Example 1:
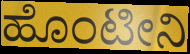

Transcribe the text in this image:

ಹೊಂಟೀನಿ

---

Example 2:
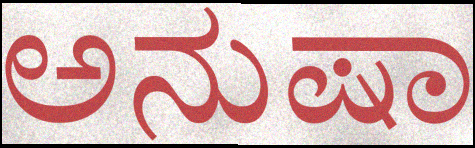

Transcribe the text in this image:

ಅನುಷಾ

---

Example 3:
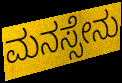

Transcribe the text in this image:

ಮನಸ್ಸೇನು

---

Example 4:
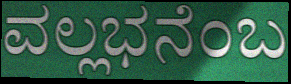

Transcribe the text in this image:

ವಲ್ಲಭನೆಂಬ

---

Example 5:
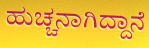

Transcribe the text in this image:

ಹುಚ್ಚನಾಗಿದ್ದಾನೆ